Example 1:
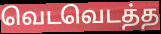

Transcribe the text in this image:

வெடவெடத்த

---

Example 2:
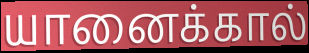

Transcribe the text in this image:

யானைக்கால்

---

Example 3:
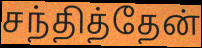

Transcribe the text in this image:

சந்தித்தேன்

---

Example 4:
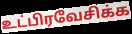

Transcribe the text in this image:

உட்பிரவேசிக்க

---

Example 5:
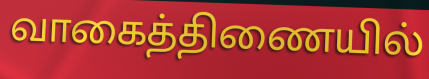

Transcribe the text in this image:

வாகைத்திணையில்